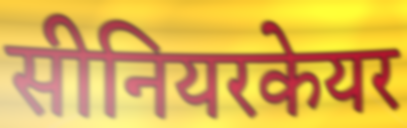
सीनियरकेयर